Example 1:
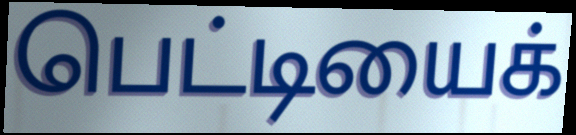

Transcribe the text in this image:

பெட்டியைக்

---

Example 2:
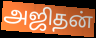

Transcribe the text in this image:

அஜிதன்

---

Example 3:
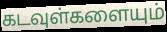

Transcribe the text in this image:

கடவுள்களையும்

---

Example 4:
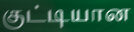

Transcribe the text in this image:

குட்டியான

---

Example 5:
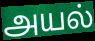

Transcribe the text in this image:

அயல்